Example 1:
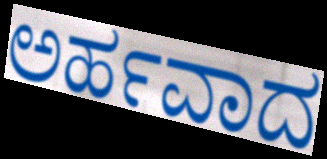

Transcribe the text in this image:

ಅರ್ಹವಾದ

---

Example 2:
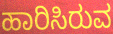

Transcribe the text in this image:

ಹಾರಿಸಿರುವ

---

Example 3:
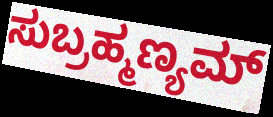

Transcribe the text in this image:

ಸುಬ್ರಹ್ಮಣ್ಯಮ್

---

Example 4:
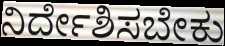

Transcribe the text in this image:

ನಿರ್ದೇಶಿಸಬೇಕು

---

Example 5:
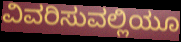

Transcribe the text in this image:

ವಿವರಿಸುವಲ್ಲಿಯೂ